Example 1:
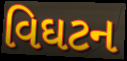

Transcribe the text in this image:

વિઘટન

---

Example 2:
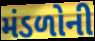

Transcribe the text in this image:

મંડળોની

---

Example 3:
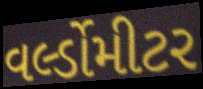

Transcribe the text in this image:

વર્લ્ડોમીટર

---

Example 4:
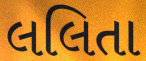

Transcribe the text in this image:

લલિતા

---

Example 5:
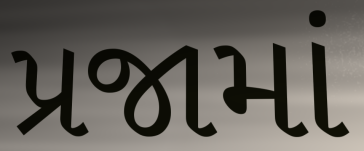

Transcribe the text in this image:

પ્રજામાં